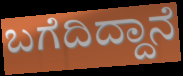
ಬಗೆದಿದ್ದಾನೆ